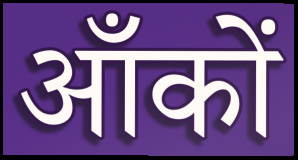
आँकों